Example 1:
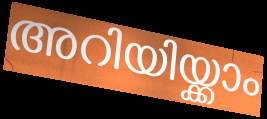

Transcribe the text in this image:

അറിയിയ്ക്കാം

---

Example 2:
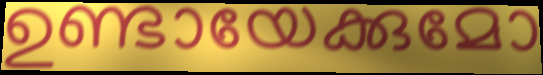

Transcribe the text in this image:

ഉണ്ടായേക്കുമോ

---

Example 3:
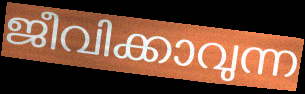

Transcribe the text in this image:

ജീവിക്കാവുന്ന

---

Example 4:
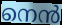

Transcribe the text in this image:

നെൻ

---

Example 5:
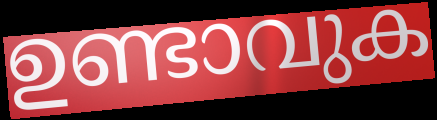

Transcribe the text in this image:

ഉണ്ടാവുക